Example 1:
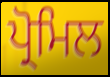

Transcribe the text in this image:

ਪ੍ਰੋਮਿਲ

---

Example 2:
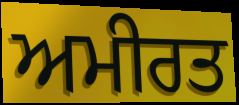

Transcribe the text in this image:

ਅਮੀਰਤ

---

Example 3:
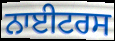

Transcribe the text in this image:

ਨਾਈਟਰਸ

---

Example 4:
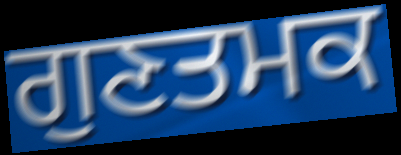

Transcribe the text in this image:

ਗੁਣਤਮਕ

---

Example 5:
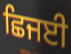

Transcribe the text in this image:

ਛਿਜਈ